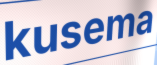
kusema